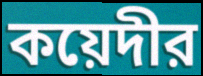
কয়েদীর